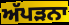
ਅੱਪੜਨਾ